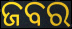
ଜବର